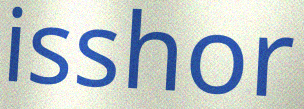
isshor